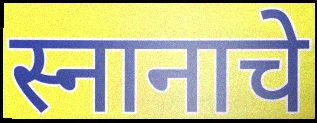
स्नानाचे